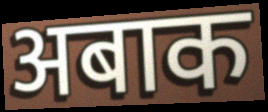
अबाक